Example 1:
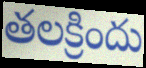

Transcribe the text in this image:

తలక్రిందు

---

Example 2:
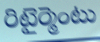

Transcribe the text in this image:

రిటైర్మెంటు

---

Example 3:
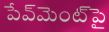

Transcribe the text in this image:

పేవ్‌మెంట్‌పై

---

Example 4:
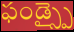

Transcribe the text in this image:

ఫండ్స్పై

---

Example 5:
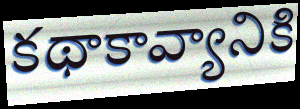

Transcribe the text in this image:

కథాకావ్యానికి